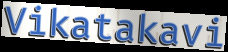
Vikatakavi